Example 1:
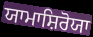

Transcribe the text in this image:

ਯਾਮਾਸ਼ਿਰੋਯਾ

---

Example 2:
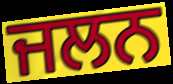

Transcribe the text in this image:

ਜਲਨ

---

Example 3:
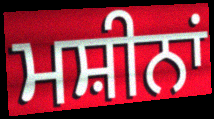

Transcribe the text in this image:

ਮਸ਼ੀਨਾਂ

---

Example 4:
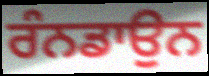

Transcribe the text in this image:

ਰੰਨਡਾਉਨ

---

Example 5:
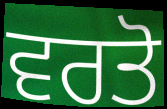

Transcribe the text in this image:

ਵਰਤੋ